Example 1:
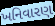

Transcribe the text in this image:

ખનિવારણ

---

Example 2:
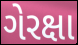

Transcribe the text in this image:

ગેરક્ષા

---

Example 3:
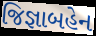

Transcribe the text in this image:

જિજ્ઞાબહેન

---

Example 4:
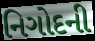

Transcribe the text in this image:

નિગોદની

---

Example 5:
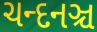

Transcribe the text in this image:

ચન્દનઞ્ચ